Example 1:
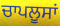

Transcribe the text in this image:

ਚਾਪਲੂਸਾਂ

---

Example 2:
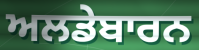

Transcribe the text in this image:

ਅਲਡੇਬਾਰਨ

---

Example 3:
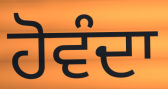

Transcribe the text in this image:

ਹੋਵੰਦਾ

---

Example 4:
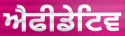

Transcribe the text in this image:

ਐਫੀਡੇਟਿਵ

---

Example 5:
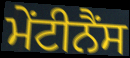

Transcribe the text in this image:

ਮੇਂਟੀਨੈਂਸ